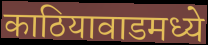
काठियावाडमध्ये